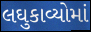
લઘુકાવ્યોમાં